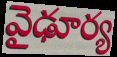
వైఢూర్య